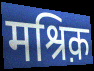
मश्रिक़